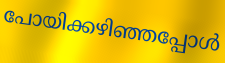
പോയിക്കഴിഞ്ഞപ്പോൾ